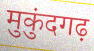
मुकुंदगढ़